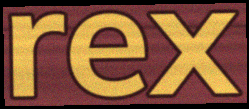
rex